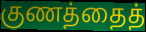
குணத்தைத்